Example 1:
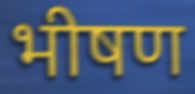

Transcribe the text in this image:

भीषण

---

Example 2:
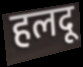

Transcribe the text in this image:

हलदू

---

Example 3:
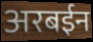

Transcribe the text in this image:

अरबईन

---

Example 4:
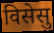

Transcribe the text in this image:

विसेसु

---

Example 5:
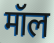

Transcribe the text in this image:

मॉल